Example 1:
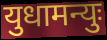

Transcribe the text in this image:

युधामन्युः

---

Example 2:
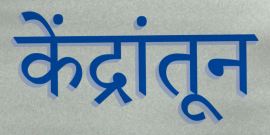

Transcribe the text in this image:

केंद्रांतून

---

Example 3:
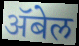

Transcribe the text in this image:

ॲबेल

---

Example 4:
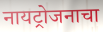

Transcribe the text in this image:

नायट्रोजनाचा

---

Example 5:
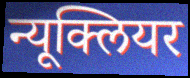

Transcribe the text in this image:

न्यूक्लियर